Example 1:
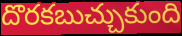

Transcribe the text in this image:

దొరకబుచ్చుకుంది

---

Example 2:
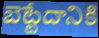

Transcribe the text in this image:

బెట్టేదానికి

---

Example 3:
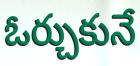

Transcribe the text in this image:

ఓర్చుకునే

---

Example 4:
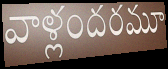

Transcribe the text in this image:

వాళ్లందరమూ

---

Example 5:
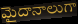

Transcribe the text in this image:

మైదానాలుగా